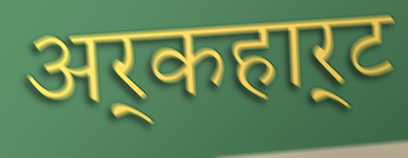
अर्कहार्ट